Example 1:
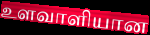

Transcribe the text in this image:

உளவாளியான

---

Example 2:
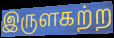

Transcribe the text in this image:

இருளகற்ற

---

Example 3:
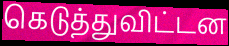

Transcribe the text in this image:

கெடுத்துவிட்டன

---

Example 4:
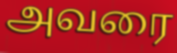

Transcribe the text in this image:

அவரை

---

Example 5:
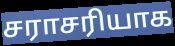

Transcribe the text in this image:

சராசரியாக